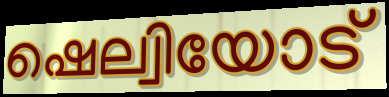
ഷെല്വിയോട്